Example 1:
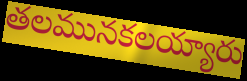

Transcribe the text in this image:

తలమునకలయ్యారు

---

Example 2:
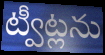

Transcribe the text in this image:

ట్వీట్లను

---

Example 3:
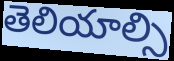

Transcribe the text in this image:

తెలియాల్సి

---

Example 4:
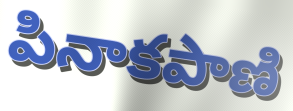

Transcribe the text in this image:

పినాకపాణి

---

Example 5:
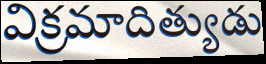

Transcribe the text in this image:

విక్రమాదిత్యుడు